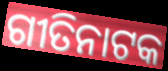
ଗୀତିନାଟକ